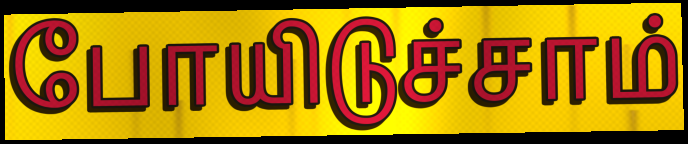
போயிடுச்சாம்